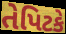
તેપિટકે